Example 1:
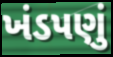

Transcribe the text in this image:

ખંડપણું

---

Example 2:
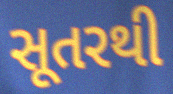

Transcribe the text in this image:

સૂતરથી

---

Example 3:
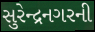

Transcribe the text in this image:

સુરેન્દ્રનગરની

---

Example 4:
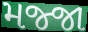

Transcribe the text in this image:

મજ્જા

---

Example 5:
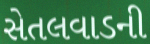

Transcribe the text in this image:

સેતલવાડની